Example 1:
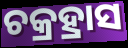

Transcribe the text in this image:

ଚକ୍ରହ୍ରାସ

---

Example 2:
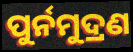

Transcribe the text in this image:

ପୁର୍ନମୁଦ୍ରଣ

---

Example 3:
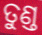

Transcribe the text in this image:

ତୁଣ୍ଡ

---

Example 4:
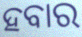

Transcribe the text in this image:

ହବାର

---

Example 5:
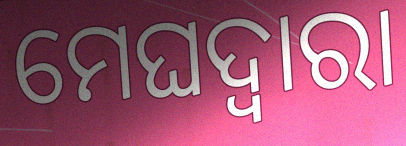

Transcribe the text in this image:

ମେଘଦ୍ୱାରା